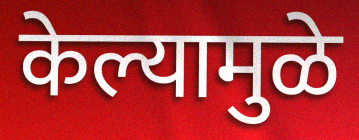
केल्यामुळे